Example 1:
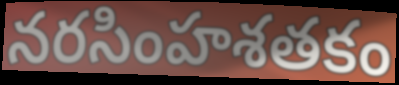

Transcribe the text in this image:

నరసింహశతకం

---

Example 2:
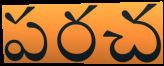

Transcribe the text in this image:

పరచ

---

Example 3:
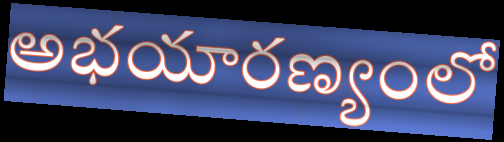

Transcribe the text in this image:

అభయారణ్యంలో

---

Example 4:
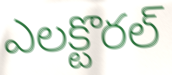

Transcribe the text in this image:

ఎలక్టొరల్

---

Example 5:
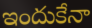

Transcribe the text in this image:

ఇందుకేనా